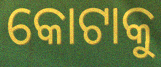
କୋଟାକୁ